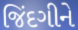
જિંદગીને